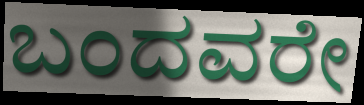
ಬಂದವರೇ